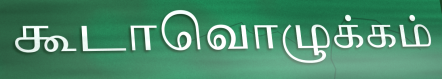
கூடாவொழுக்கம்